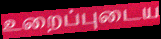
உறைப்புடைய